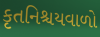
કૃતનિશ્ચયવાળો